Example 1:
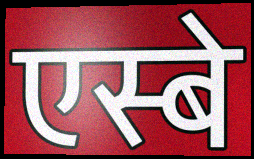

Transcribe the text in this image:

एस्बे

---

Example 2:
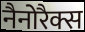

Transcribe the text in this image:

नैनोरैक्स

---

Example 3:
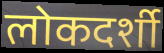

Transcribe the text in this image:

लोकदर्शी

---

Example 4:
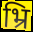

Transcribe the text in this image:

भ्रि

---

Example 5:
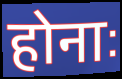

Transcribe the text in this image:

होनाः